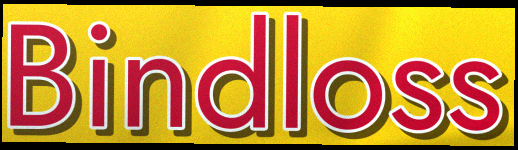
Bindloss